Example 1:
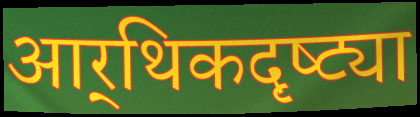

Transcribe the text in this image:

आर्थिकदृष्ट्या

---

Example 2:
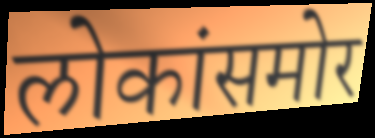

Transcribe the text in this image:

लोकांसमोर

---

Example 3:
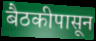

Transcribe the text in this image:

बैठकीपासून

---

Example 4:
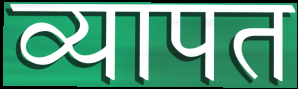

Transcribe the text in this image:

व्यापत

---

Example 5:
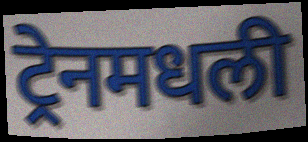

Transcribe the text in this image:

ट्रेनमधली